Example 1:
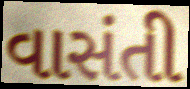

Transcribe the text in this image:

વાસંતી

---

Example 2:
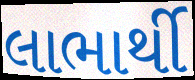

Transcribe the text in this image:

લાભાર્થી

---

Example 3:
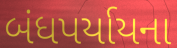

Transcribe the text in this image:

બંધપર્યાયના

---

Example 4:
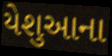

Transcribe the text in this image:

યેશુઆના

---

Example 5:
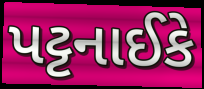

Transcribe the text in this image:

પટ્ટનાઈકે